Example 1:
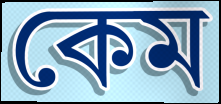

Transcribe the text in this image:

কেম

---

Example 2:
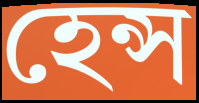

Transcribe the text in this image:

হেন্স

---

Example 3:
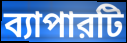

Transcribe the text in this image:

ব্যাপারটি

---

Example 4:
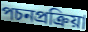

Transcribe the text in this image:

পচনপ্রক্রিয়া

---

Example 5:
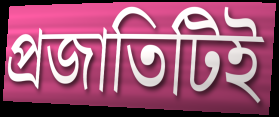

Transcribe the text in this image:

প্রজাতিটিই